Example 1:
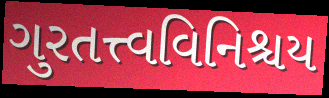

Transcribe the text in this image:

ગુરતત્ત્વવિનિશ્ચય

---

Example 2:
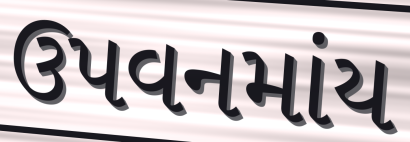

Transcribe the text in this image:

ઉપવનમાંય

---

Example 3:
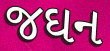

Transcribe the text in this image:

જઘન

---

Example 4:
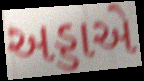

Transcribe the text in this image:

અડ્ડાએ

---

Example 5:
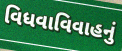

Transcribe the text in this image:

વિધવાવિવાહનું